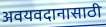
अवयवदानासाठी